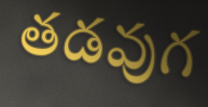
తడవుగ